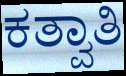
ಕತ್ವಾತಿ